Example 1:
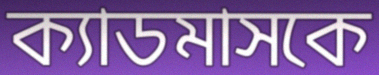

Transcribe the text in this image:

ক্যাডমাসকে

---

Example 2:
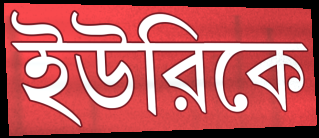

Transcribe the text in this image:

ইউরিকে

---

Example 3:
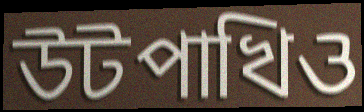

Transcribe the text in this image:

উটপাখিও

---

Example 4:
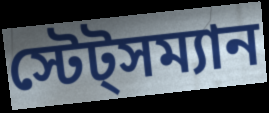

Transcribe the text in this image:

স্টেট্সম্যান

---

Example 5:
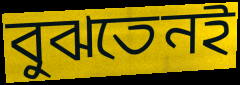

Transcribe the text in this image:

বুঝতেনই